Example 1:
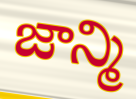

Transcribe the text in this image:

జాన్మి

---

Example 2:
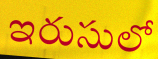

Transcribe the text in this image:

ఇరుసులో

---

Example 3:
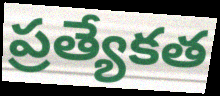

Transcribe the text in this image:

ప్రత్యేకత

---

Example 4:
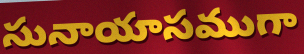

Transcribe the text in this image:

సునాయాసముగా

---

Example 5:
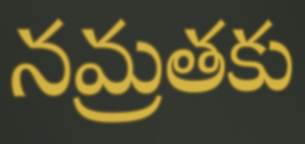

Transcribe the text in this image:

నమ్రతకు